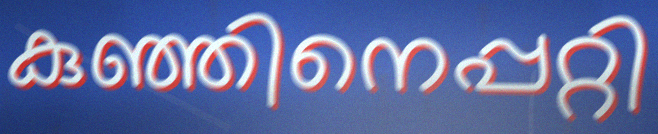
കുഞ്ഞിനെപ്പറ്റി